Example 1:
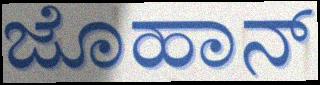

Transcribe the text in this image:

ಜೊಹಾನ್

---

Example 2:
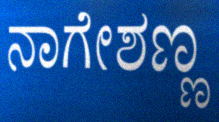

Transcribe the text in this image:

ನಾಗೇಶಣ್ಣ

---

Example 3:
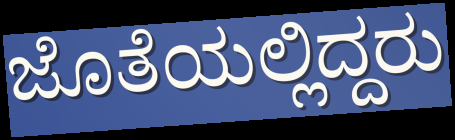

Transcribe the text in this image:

ಜೊತೆಯಲ್ಲಿದ್ದರು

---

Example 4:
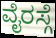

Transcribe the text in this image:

ವೈರಸ್ಗೆ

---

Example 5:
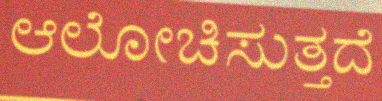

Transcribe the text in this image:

ಆಲೋಚಿಸುತ್ತದೆ